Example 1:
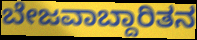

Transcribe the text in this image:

ಬೇಜವಾಬ್ದಾರಿತನ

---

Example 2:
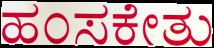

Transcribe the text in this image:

ಹಂಸಕೇತು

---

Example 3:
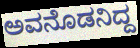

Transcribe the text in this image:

ಅವನೊಡನಿದ್ದ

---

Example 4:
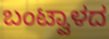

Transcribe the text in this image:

ಬಂಟ್ವಾಳದ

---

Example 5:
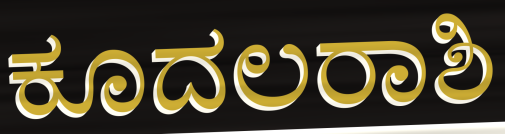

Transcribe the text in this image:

ಕೂದಲರಾಶಿ